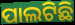
ପାଲଟିଛି